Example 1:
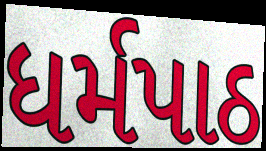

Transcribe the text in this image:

ધર્મપાઠ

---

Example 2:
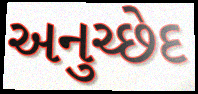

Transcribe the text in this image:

અનુચ્છેદ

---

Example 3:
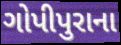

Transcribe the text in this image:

ગોપીપુરાના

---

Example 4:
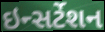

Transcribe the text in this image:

ઇન્સર્ટેશન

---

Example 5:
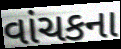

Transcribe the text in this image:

વાંચકના